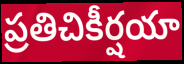
ప్రతిచికీర్షయా